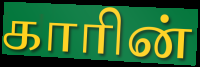
காரின்